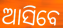
ଆସିବେ